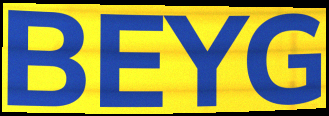
BEYG